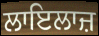
ਲਾਇਲਾਜ਼